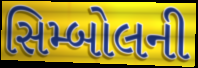
સિમ્બોલની